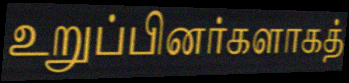
உறுப்பினர்களாகத்